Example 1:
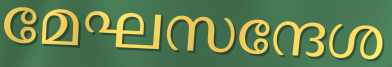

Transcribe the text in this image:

മേഘസന്ദേശ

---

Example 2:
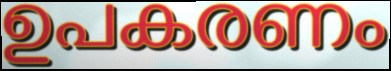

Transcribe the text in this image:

ഉപകരണം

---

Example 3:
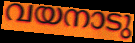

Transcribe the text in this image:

വയനാടു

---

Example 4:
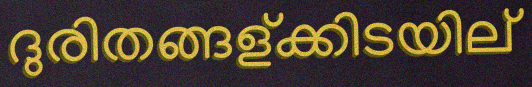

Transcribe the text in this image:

ദുരിതങ്ങള്ക്കിടയില്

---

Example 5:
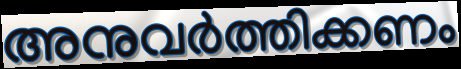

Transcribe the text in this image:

അനുവർത്തിക്കണം